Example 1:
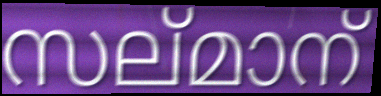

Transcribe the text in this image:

സല്മാന്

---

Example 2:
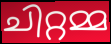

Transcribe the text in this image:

ചിറ്റമ്മ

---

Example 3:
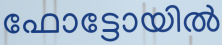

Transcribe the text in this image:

ഫോട്ടോയിൽ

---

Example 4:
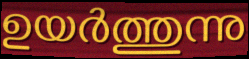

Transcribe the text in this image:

ഉയർത്തുന്നു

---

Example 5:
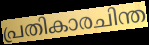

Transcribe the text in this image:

പ്രതികാരചിന്ത